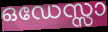
ഒഡേസ്സാ